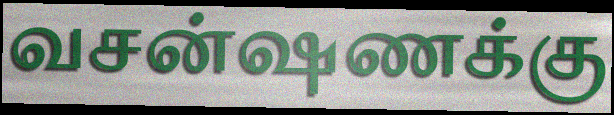
வசன்ஷணக்கு